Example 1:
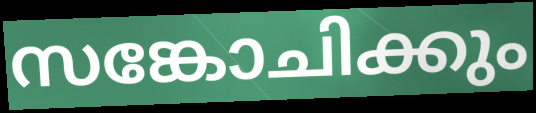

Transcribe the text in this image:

സങ്കോചിക്കും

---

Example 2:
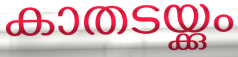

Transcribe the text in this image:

കാതടയ്ക്കും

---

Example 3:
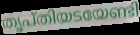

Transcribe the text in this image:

തൃപ്തിയടയേണ്ടി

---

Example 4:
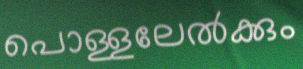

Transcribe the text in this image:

പൊള്ളലേൽക്കും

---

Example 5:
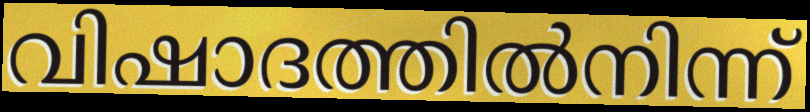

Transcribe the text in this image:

വിഷാദത്തിൽനിന്ന്